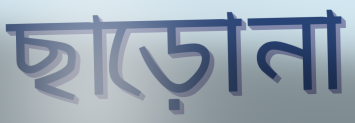
ছাড়োনা